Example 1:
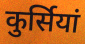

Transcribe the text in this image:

कुर्सियां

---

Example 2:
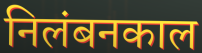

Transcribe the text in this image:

निलंबनकाल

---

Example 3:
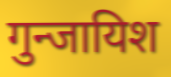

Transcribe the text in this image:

गुन्जायिश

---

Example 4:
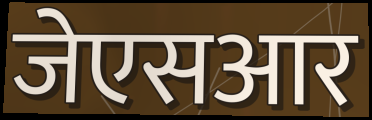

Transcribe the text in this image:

जेएसआर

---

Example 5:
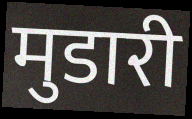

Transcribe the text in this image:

मुडारी